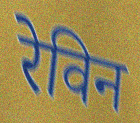
रेविन